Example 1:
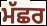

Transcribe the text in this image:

ਮੱਛਰ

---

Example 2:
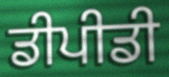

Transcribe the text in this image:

ਡੀਪੀਡੀ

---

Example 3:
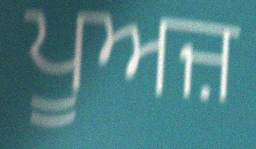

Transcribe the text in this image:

ਪੂਅਜ਼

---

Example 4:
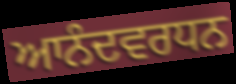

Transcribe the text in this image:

ਆਨੰਦਵਰਧਨ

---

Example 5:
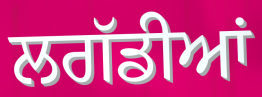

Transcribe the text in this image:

ਲਗੱਡੀਆਂ